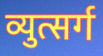
व्युत्सर्ग